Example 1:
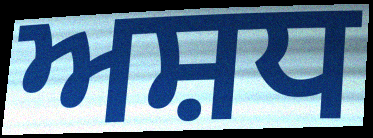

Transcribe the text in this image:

ਅਸ਼ਧ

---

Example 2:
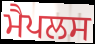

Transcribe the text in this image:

ਮੈਪਲਸ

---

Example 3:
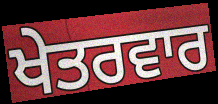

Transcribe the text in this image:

ਖੇਤਰਵਾਰ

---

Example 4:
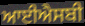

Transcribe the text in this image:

ਆਈਐਸਬੀ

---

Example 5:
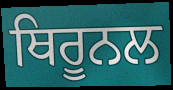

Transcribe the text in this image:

ਥਿਰੂਨਲ